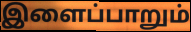
இளைப்பாறும்